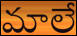
మాలే